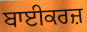
ਬਾਈਕਰਜ਼